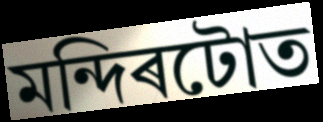
মন্দিৰটোত